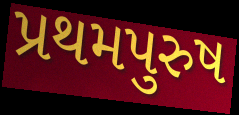
પ્રથમપુરુષ